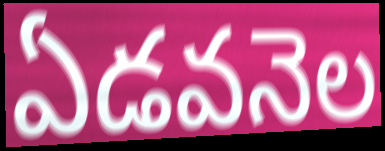
ఏడవనెల